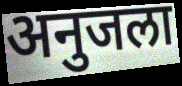
अनुजला